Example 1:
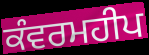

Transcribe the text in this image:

ਕੰਵਰਮਹੀਪ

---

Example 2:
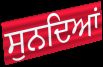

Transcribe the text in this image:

ਸੁਨਦਿਆਂ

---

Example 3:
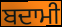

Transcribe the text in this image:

ਬਦਾਮੀ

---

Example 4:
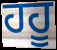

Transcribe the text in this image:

ਹਹੂ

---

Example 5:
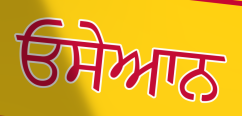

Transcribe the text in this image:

ਓਸੇਆਨ